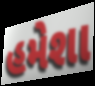
હમેશા